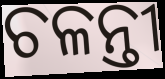
ଚଳନ୍ତୀ